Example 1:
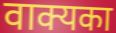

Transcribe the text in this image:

वाक्यका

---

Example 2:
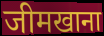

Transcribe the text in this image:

जीमखाना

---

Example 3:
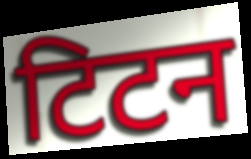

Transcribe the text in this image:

टिटन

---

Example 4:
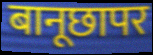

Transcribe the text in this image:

बानूछापर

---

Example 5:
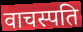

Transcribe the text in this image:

वाचस्पति